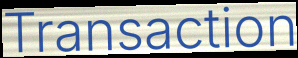
Transaction